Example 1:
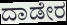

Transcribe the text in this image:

ದಾಡೇರ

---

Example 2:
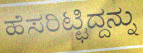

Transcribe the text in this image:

ಹೆಸರಿಟ್ಟಿದ್ದನ್ನು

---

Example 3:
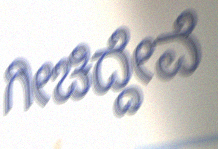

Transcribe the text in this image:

ಗೀಚಿದ್ದೇವೆ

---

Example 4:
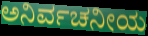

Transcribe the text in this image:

ಅನಿರ್ವಚನೀಯ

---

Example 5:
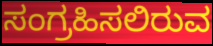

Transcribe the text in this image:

ಸಂಗ್ರಹಿಸಲಿರುವ